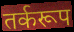
तर्करूप